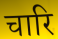
चारि